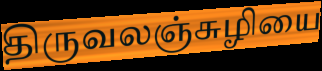
திருவலஞ்சுழியை